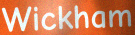
Wickham